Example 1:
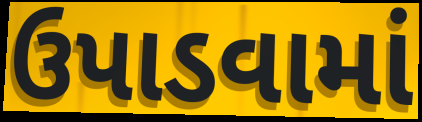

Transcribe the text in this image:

ઉપાડવામાં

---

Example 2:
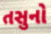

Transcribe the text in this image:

તસુનો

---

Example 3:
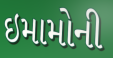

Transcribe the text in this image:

ઇમામોની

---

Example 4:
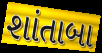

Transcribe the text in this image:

શાંતાબા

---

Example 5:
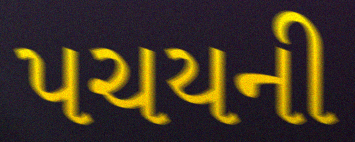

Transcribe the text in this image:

પચયની